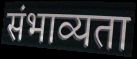
संभाव्यता